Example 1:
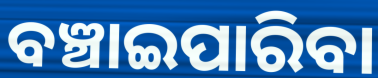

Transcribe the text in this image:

ବଞ୍ଚାଇପାରିବା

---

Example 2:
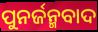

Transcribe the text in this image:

ପୁନର୍ଜନ୍ମବାଦ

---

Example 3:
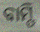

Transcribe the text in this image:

ବାମ୍ଫି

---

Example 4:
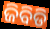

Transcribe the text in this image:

ଜିବିଡି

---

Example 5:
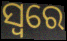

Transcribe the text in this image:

ସ୍ବରେ